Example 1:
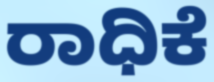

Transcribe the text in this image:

ರಾಧಿಕೆ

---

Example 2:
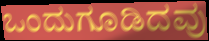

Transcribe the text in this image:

ಒಂದುಗೂಡಿದವು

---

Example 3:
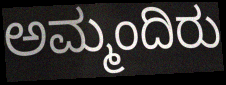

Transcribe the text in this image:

ಅಮ್ಮಂದಿರು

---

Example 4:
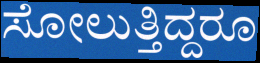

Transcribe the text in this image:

ಸೋಲುತ್ತಿದ್ದರೂ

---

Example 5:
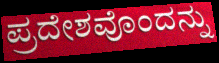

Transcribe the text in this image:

ಪ್ರದೇಶವೊಂದನ್ನು